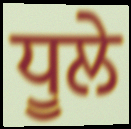
ਧੂਲੇ